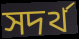
সদর্থ